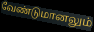
வேண்டுமானலும்